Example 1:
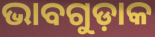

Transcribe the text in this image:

ଭାବଗୁଡ଼ାକ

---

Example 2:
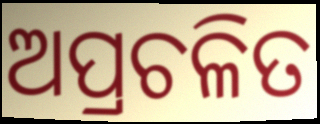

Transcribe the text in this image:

ଅପ୍ରଚଳିତ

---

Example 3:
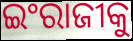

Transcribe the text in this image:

ଇଂରାଜୀକୁ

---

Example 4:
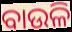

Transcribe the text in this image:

ବାଉଳି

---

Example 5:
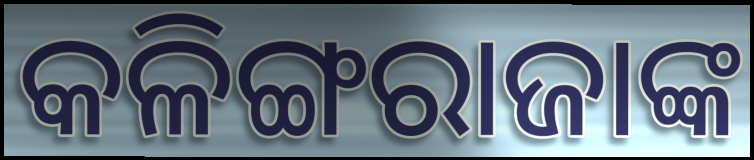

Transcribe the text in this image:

କଳିଙ୍ଗରାଜାଙ୍କ